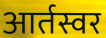
आर्तस्वर